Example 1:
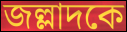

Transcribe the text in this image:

জল্লাদকে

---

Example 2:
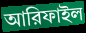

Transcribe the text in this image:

আরিফাইল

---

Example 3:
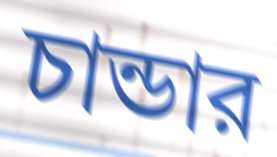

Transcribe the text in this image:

চান্ডার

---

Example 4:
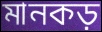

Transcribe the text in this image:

মানকড়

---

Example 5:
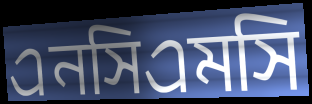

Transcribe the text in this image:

এনসিএমসি